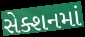
સેક્શનમાં